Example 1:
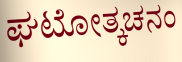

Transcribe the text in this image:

ಘಟೋತ್ಕಚನಂ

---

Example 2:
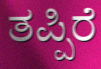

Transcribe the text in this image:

ತಪ್ಪಿರೆ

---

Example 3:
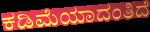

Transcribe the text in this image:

ಕಡಿಮೆಯಾದಂತಿದೆ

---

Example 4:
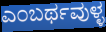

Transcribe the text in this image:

ಎಂಬರ್ಥವುಳ್ಳ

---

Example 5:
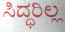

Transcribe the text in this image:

ಸಿದ್ಧರಿಲ್ಲ